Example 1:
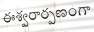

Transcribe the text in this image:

ఈశ్వరార్పణంగా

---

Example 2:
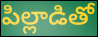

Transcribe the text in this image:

పిల్లాడితో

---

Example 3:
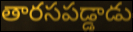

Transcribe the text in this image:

తారసపడ్డాడు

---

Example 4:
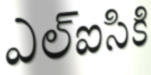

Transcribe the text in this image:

ఎల్ఐసికి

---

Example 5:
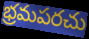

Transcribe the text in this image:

భ్రమపరచు